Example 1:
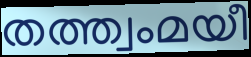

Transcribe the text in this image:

തത്ത്വംമയീ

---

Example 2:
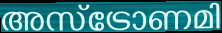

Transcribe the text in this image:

അസ്ട്രോണമി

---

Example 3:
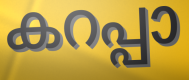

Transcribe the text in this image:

കറപ്പാ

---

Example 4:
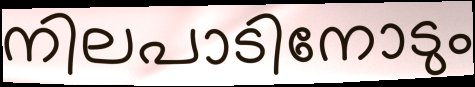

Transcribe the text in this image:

നിലപാടിനോടും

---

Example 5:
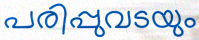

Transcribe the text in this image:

പരിപ്പുവടയും